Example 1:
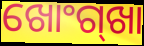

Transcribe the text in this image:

ଖୋଂଗ୍‍ଖା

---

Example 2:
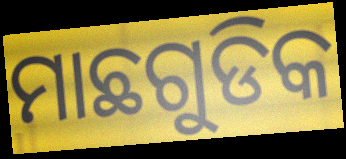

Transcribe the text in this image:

ମାଛଗୁଡିକ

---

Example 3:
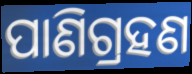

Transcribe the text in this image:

ପାଣିଗ୍ରହଣ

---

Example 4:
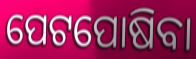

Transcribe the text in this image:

ପେଟପୋଷିବା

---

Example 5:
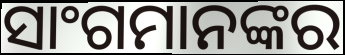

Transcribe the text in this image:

ସାଂଗମାନଙ୍କର